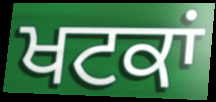
ਖਟਕਾਂ